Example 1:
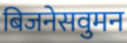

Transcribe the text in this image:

बिजनेसवुमन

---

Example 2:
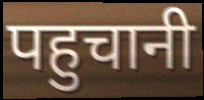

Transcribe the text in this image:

पहुचानी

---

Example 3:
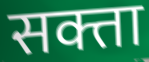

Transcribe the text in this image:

सक्ता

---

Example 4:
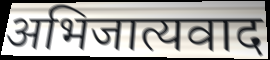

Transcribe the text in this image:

अभिजात्यवाद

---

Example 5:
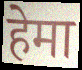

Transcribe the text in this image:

हेमा